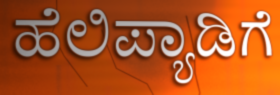
ಹೆಲಿಪ್ಯಾಡಿಗೆ